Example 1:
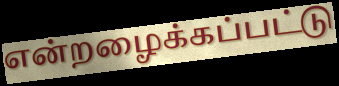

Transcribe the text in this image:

என்றழைக்கப்பட்டு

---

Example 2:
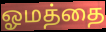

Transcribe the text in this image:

ஓமத்தை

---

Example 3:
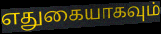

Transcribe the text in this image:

எதுகையாகவும்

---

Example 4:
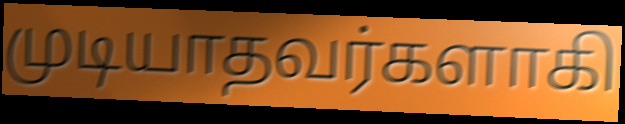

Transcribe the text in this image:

முடியாதவர்களாகி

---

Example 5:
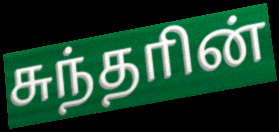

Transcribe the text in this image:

சுந்தரின்